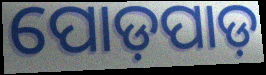
ପୋଡ଼ପାଡ଼